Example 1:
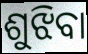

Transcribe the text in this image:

ଶୁଝିବା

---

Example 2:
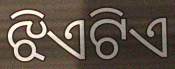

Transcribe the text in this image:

ଝିଏଟିଏ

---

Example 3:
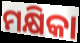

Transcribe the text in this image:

ମକ୍ଷିକା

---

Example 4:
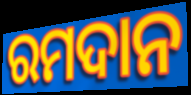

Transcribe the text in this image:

ରମଦାନ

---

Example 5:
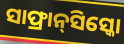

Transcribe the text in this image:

ସାଫ୍ରାନ୍‌ସିସ୍କୋ